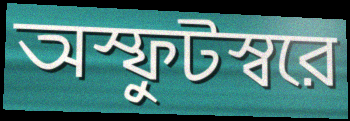
অস্ফুটস্বরে